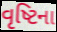
વૃષ્ટિના